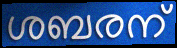
ശബരന്